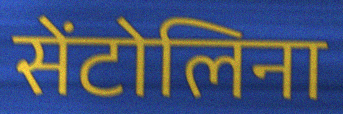
सेंटोलिना